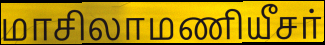
மாசிலாமணியீசர்